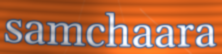
samchaara